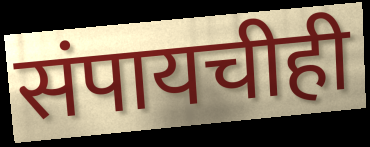
संपायचीही